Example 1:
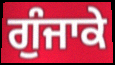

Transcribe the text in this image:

ਗੁੰਜਾਕੇ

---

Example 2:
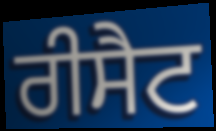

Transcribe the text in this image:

ਰੀਸੈਟ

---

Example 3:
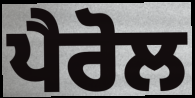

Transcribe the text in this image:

ਪੈਰੋਲ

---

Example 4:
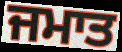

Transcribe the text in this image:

ਜਮਾਤ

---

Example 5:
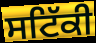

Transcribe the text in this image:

ਸਟਿੱਕੀ